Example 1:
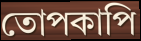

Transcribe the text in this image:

তোপকাপি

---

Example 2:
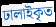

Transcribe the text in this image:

ঢালাইকৃত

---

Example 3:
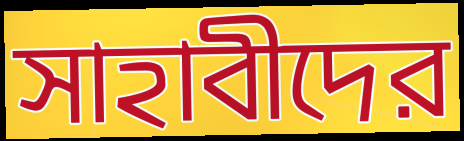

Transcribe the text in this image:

সাহাবীদের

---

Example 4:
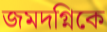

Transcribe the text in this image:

জমদগ্নিকে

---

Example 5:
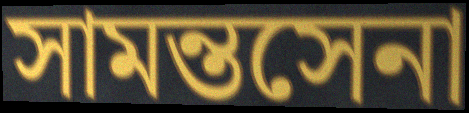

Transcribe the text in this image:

সামন্তসেনা